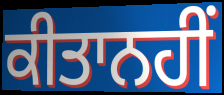
ਕੀਤਾਨਹੀਂ